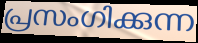
പ്രസംഗിക്കുന്ന